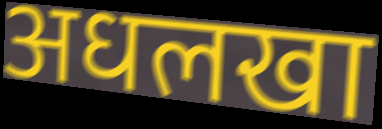
अधलखा